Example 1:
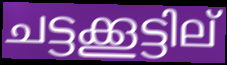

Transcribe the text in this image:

ചട്ടക്കൂട്ടില്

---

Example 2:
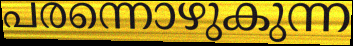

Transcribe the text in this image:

പരന്നൊഴുകുന്ന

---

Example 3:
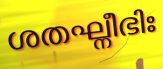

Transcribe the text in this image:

ശതഘ്നീഭിഃ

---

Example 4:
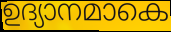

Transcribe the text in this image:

ഉദ്യാനമാകെ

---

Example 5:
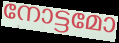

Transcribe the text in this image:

നോട്ടമോ